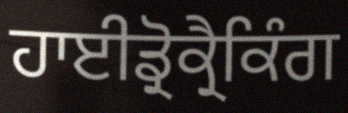
ਹਾਈਡ੍ਰੋਕ੍ਰੈਕਿੰਗ